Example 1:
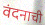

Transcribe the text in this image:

वंदनाची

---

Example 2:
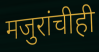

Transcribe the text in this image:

मजुरांचीही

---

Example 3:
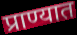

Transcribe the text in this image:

प्राण्यात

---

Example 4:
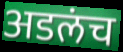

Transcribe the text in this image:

अडलंच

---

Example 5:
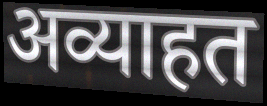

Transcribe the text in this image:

अव्याहत